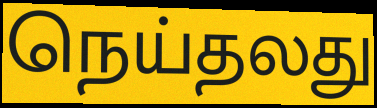
நெய்தலது